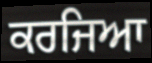
ਕਰਜਿਆ